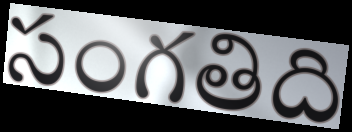
సంగతిది